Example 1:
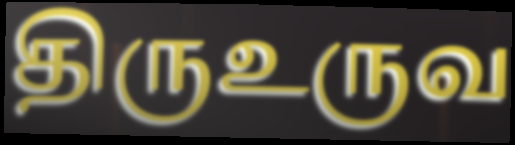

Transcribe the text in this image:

திருஉருவ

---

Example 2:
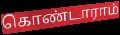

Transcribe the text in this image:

கொண்டாராம்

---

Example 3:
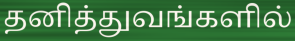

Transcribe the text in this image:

தனித்துவங்களில்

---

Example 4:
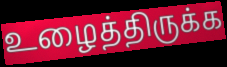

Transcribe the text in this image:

உழைத்திருக்க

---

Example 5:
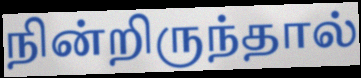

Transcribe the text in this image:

நின்றிருந்தால்